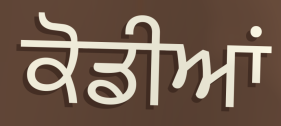
ਕੋਡੀਆਂ